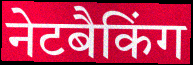
नेटबैकिंग